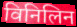
विनिलिन